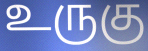
உருகு